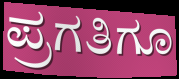
ಪ್ರಗತಿಗೂ